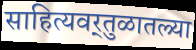
साहित्यवर्तुळातल्या